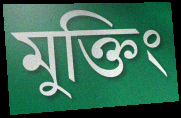
মুক্তিং